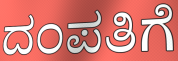
ದಂಪತಿಗೆ